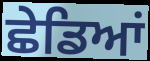
ਛੇਡਿਆਂ